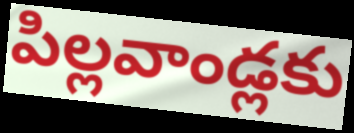
పిల్లవాండ్లకు